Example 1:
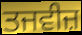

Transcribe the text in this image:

ਤਜਵੀਜ਼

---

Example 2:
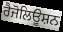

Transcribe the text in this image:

ਰੈਜੋਲਿਊਸ਼ਨ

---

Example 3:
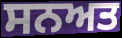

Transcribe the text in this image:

ਸਨਅਤ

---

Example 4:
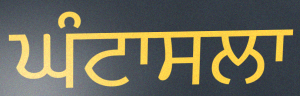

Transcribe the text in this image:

ਘੰਟਾਸਲਾ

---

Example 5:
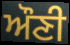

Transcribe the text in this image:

ਔਣੀ